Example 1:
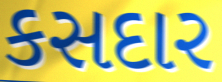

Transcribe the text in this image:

કસદાર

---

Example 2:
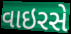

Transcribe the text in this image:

વાઇરસે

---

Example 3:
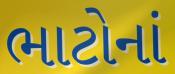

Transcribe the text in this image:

ભાટોનાં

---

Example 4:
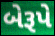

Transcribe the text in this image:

બેરૂપે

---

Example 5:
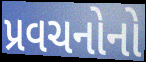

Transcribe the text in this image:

પ્રવચનોનો